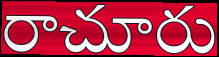
రాచూరు